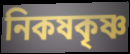
নিকষকৃষ্ণ